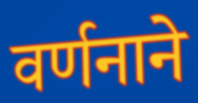
वर्णनाने